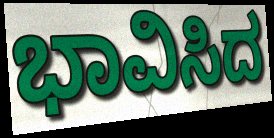
ಭಾವಿಸಿದ